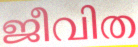
ജീവിത